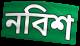
নবিশ